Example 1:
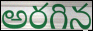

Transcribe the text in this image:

అరగిన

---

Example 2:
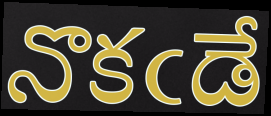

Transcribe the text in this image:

నొకఁడే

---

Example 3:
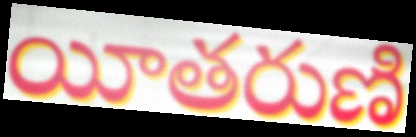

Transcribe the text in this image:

యీతరుణి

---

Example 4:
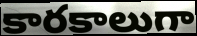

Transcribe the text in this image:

కారకాలుగా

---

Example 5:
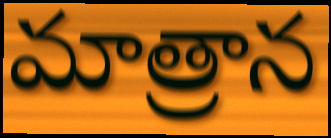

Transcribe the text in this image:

మాత్రాన